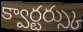
క్వార్టర్స్కు